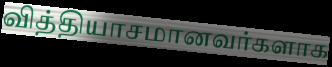
வித்தியாசமானவர்களாக